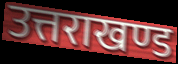
उत्तराखण्ड